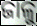
ଜାଳୁ